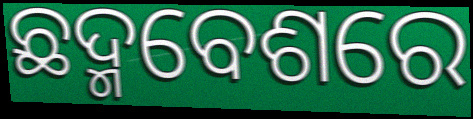
ଛଦ୍ମବେଶରେ